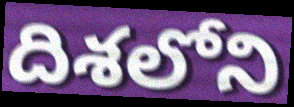
దిశలోని